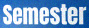
Semester